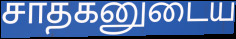
சாதகனுடைய